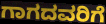
ಗಾಗದವರಿಗೆ